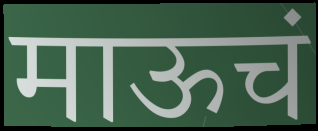
माऊचं